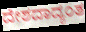
ದೇಶದಾದ್ಯಂತ